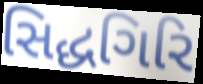
સિદ્ધગિરિ